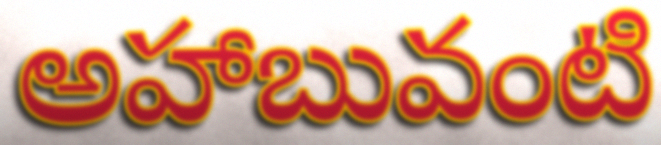
అహాబువంటి